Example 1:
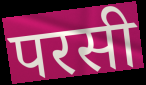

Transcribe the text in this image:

परसी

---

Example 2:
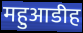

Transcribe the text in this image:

महुआडीह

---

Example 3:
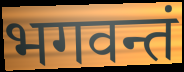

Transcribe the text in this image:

भगवन्तं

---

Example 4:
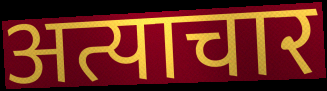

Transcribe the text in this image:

अत्याचार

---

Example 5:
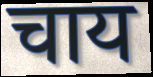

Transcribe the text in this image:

चाय